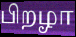
பிறழா